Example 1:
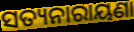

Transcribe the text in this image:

ସତ୍ୟନାରାୟଣା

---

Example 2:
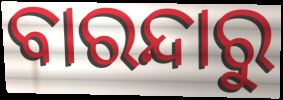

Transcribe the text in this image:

ବାରନ୍ଦାରୁ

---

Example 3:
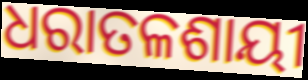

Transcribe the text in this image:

ଧରାତଳଶାୟୀ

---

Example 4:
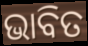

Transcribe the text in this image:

ଭାବିତ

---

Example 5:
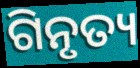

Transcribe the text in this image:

ଗିନୃତ୍ୟ